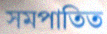
সমপাতিত